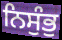
ਨਿਸੁੰਭੁ